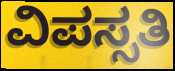
ವಿಪಸ್ಸತಿ